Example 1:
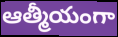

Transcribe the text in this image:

ఆత్మీయంగా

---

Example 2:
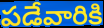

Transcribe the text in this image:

పడేవారికి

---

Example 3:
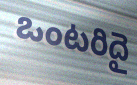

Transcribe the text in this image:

ఒంటరిదై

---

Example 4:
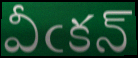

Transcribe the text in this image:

వీఁకన్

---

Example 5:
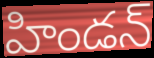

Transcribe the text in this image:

హిండన్